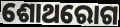
ଶୋଥରୋଗ